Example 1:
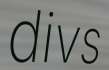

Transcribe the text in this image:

divs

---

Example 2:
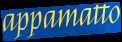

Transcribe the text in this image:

appamatto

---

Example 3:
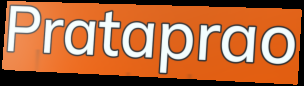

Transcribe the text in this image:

Prataprao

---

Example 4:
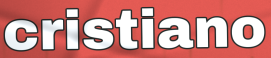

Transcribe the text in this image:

cristiano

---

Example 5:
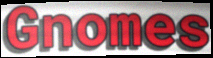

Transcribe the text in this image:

Gnomes